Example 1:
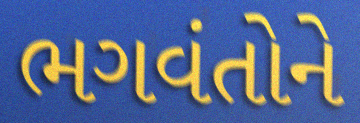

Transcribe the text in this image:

ભગવંતોને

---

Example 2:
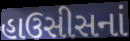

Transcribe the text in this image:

હાઉસીસનાં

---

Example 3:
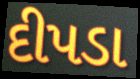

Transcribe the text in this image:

દીપડા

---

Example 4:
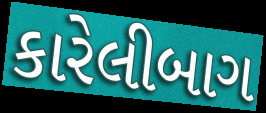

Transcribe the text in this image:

કારેલીબાગ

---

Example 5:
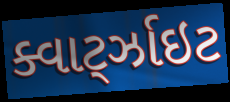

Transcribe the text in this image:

ક્વાર્ટ્ઝાઇટ